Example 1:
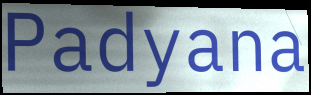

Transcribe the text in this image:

Padyana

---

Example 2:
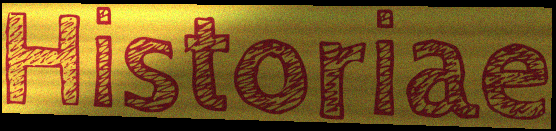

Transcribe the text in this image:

Historiae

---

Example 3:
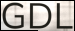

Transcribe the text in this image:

GDL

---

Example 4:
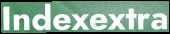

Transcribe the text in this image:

Indexextra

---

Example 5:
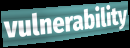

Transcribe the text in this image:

vulnerability